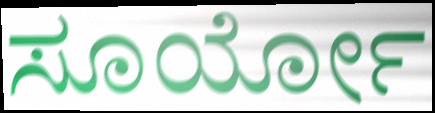
ಸೂರ್ಯೋ